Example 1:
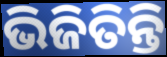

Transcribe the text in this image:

ଭିଜିତିନ୍ତି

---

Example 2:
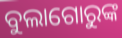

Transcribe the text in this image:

ବୁଲାଗୋରୁଙ୍କ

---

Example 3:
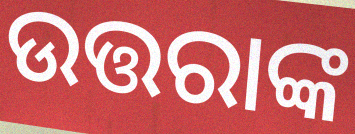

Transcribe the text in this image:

ଉତ୍ତରାଙ୍କ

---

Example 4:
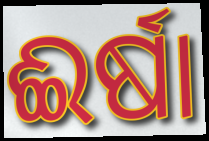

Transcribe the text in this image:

ଈର୍ଷା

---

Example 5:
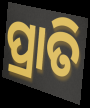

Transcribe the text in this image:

ପ୍ରାତି